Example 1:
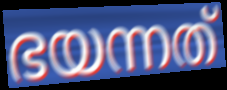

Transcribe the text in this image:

ഭയന്നത്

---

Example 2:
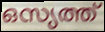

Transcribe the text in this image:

ഒസ്യത്ത്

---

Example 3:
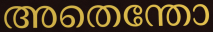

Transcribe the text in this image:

അതെന്തോ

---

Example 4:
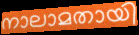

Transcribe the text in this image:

നാലാമതായി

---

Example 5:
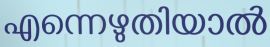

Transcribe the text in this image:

എന്നെഴുതിയാൽ